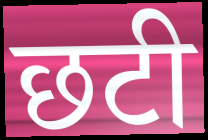
छटी